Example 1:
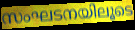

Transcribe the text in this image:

സംഘടനയിലൂടെ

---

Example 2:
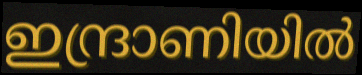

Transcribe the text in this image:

ഇന്ദ്രാണിയിൽ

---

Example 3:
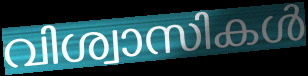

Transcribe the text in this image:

വിശ്വാസികൾ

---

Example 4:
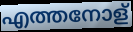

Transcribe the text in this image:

എത്തനോള്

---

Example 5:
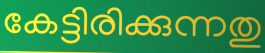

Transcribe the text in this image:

കേട്ടിരിക്കുന്നതു